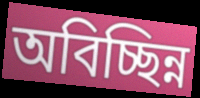
অবিচ্ছিন্ন